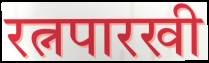
रत्नपारखी